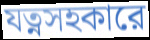
যত্নসহকারে